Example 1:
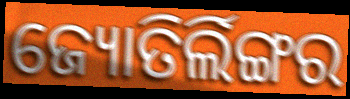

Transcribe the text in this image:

ଜ୍ୟୋତିର୍ଲିଙ୍ଗର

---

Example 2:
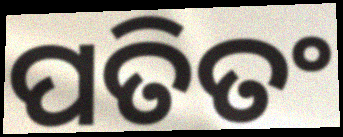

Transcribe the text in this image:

ପତିତଂ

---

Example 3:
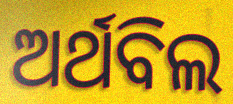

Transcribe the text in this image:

ଅର୍ଥବିଲ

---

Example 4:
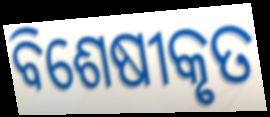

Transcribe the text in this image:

ବିଶେଷୀକୃତ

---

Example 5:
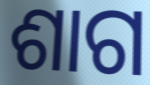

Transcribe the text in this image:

ଶାଗ